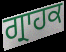
ਗ੍ਰਾਹਕ